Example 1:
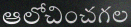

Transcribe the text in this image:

ఆలోచించగల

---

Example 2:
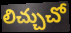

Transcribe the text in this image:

లిచ్చుచో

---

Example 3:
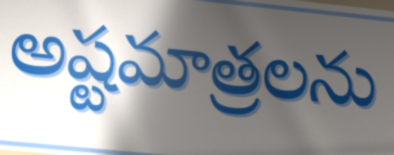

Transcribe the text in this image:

అష్టమాత్రలను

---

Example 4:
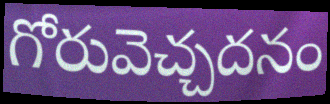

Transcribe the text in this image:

గోరువెచ్చదనం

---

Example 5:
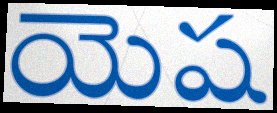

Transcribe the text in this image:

యెష